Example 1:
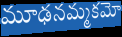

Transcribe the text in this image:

మూఢనమ్మకమో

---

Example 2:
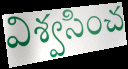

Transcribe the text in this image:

విశ్వసించ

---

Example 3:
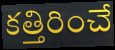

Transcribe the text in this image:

కత్తిరించే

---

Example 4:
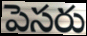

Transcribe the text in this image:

పెసరు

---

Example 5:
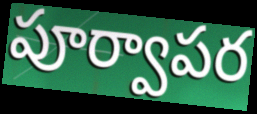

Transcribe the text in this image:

పూర్వాపర